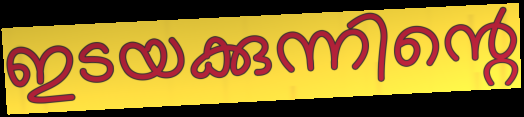
ഇടയക്കുന്നിന്റെ